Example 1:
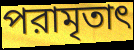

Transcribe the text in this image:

পরামৃতাৎ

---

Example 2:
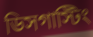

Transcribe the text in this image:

ডিসগাস্টিং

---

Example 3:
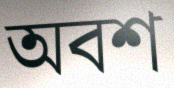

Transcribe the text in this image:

অবশ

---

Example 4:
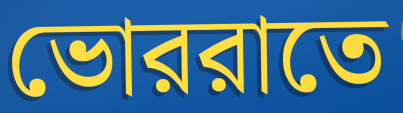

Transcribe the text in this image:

ভোররাতে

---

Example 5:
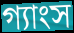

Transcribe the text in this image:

গ্যাংস